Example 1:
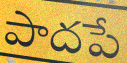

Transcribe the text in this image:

పాదపే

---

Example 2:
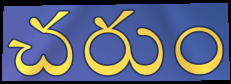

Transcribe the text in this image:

చరుం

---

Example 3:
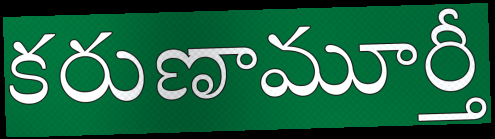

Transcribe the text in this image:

కరుణామూర్తీ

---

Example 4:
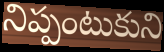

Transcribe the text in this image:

నిప్పంటుకుని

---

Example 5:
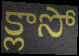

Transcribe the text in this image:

క్లాసో